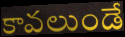
కావలుండే